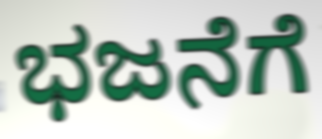
ಭಜನೆಗೆ